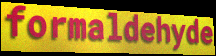
formaldehyde